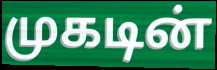
முகடின்